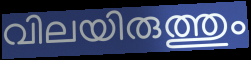
വിലയിരുത്തും